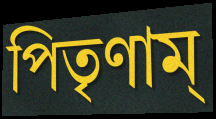
পিতৃণাম্